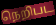
நெறிபட